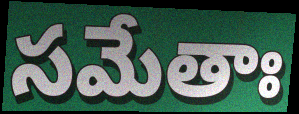
సమేతాః